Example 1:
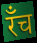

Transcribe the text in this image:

रँच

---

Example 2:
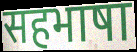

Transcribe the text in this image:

सहभाषा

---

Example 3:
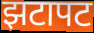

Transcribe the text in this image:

झटापट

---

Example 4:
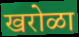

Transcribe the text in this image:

खरोळा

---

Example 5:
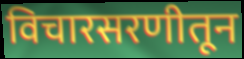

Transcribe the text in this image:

विचारसरणीतून